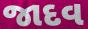
જાદવ